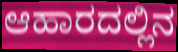
ಆಹಾರದಲ್ಲಿನ